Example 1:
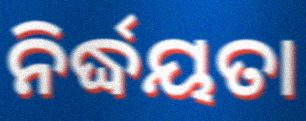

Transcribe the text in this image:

ନିର୍ଦ୍ଧୟତା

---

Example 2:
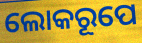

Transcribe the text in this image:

ଲୋକରୂପେ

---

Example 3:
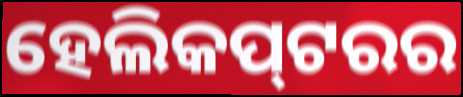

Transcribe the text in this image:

ହେଲିକପ୍‌ଟରର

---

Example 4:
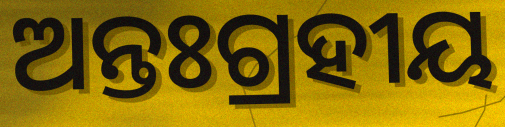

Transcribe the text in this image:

ଅନ୍ତଃଗ୍ରହୀୟ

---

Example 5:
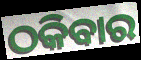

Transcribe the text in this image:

ଠକିବାର